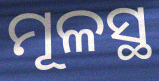
ମୂଳସ୍ଥ